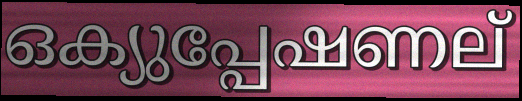
ഒക്യുപ്പേഷണല്